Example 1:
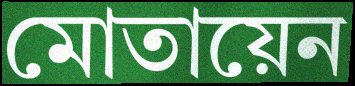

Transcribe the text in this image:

মোতায়েন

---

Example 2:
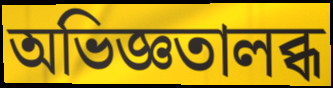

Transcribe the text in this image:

অভিজ্ঞতালব্ধ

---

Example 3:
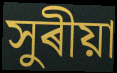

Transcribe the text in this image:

সুৰীয়া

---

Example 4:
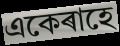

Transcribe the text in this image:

একেৰাহে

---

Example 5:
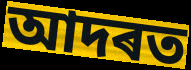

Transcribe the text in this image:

আদৰত